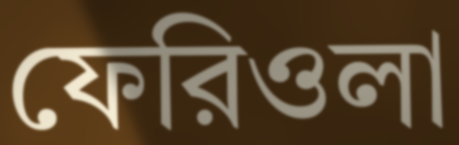
ফেরিওলা